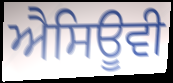
ਐਸਿਊਵੀ